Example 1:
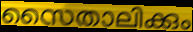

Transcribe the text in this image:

സൈതാലിക്കും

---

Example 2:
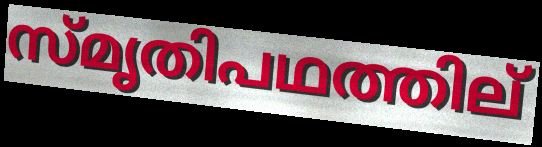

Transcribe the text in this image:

സ്മൃതിപഥത്തില്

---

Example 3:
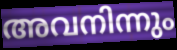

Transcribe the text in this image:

അവനിന്നും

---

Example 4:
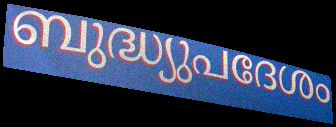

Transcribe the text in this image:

ബുദ്ധ്യുപദേശം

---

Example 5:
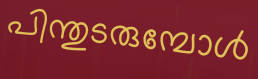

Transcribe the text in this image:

പിന്തുടരുമ്പോൾ